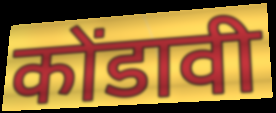
कोंडावी